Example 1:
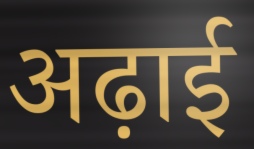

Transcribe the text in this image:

अढ़ाई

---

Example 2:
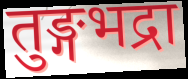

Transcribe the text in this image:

तुङ्गभद्रा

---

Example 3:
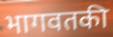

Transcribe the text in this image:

भागवतकी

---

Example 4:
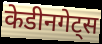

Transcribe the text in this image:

केडीनगेट्स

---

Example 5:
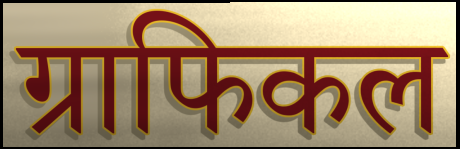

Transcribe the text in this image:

ग्राफिकल